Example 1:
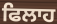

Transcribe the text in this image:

ਫਿਲਾਹ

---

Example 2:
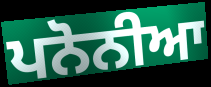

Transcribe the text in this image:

ਪਨੋਨੀਆ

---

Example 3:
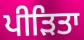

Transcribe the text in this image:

ਪੀੜਿਤਾ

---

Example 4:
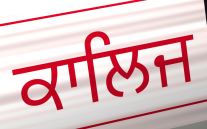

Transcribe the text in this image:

ਕਾਲਿਜ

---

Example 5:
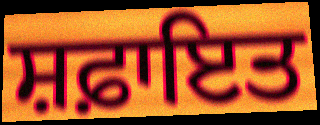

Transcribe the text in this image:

ਸ਼ਫ਼ਾਇਤ